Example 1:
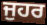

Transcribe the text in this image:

ਜੁਹਰ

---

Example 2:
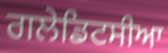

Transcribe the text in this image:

ਗਲੇਡਿਟਸੀਆ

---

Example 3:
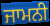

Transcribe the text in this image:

ਜਾਮਨੀ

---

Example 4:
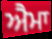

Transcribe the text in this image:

ਐਮਾ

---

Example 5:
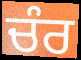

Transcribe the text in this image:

ਚੰਰ